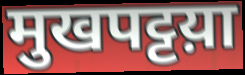
मुखपट्टय़ा